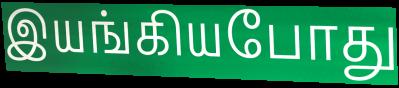
இயங்கியபோது